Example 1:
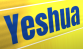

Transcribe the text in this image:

Yeshua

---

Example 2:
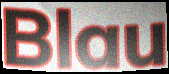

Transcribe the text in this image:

Blau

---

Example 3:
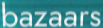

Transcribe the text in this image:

bazaars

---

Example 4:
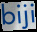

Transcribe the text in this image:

biji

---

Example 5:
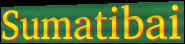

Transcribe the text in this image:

Sumatibai